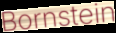
Bornstein